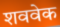
शववेक